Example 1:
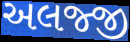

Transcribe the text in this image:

અલજ્જી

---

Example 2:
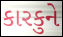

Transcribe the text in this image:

કારકુને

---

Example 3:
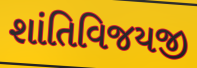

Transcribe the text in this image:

શાંતિવિજયજી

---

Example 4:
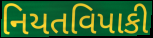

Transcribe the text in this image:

નિયતવિપાકી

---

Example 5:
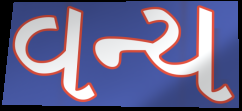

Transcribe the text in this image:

વન્ય